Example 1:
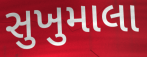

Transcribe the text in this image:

સુખુમાલા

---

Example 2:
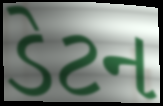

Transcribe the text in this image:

ડેટન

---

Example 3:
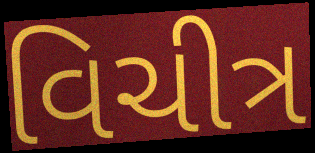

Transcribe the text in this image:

વિચીત્ર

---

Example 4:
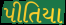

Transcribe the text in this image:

પીતિયા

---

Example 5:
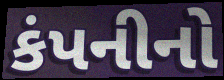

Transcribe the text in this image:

કંપનીનો